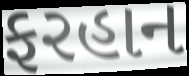
ફરહાન